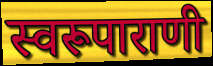
स्वरूपाराणी